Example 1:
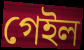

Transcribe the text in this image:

গেইল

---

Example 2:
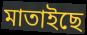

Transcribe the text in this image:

মাতাইছে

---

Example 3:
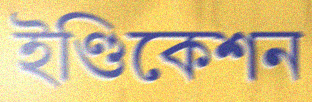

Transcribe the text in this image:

ইণ্ডিকেশন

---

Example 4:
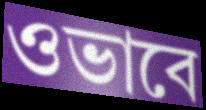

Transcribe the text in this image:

ওভাবে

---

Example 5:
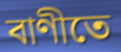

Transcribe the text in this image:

বাণীতে